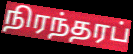
நிரந்தரப்